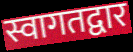
स्वागतद्वार